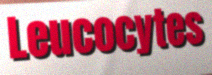
Leucocytes